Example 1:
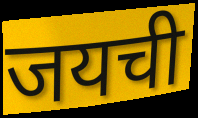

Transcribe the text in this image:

जयची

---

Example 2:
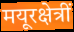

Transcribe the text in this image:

मयूरक्षेत्रीं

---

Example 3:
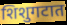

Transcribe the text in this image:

शिशुगटात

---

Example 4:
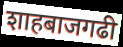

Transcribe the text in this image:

शाहबाजगढी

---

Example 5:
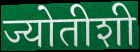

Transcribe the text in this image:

ज्योतीशी